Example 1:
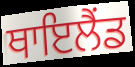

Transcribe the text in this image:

ਥਾਇਲੈਂਡ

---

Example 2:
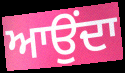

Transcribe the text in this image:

ਆਉਂਦਾ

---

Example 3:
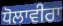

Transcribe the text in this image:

ਧੋਲਾਵੀਰਾ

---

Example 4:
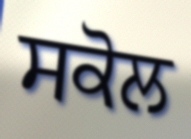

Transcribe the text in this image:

ਸਕੋਲ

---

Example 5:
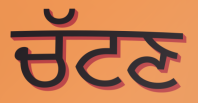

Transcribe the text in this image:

ਚੱਟਣ